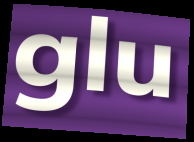
glu